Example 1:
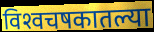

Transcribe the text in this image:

विश्वचषकातल्या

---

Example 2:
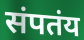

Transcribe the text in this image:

संपतंय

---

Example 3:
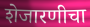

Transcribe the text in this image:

शेजारणीचा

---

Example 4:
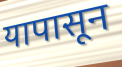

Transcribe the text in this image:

यापासून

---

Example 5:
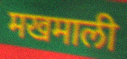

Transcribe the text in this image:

मखमाली